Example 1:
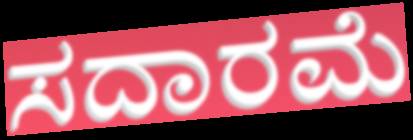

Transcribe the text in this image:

ಸದಾರಮೆ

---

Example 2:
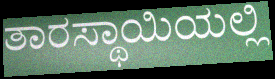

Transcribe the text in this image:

ತಾರಸ್ಥಾಯಿಯಲ್ಲಿ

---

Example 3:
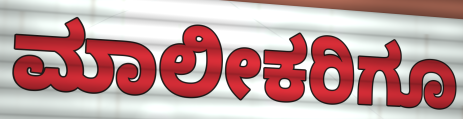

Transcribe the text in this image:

ಮಾಲೀಕರಿಗೂ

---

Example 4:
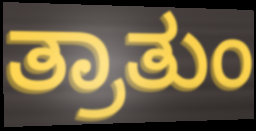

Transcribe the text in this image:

ತ್ರಾತುಂ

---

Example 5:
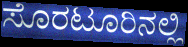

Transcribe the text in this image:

ಸೊರಟೂರಿನಲ್ಲಿ